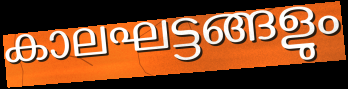
കാലഘട്ടങ്ങളും